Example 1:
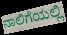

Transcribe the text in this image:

ನಾಲಿಗೆಯಲ್ಲಿ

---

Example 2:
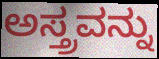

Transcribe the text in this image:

ಅಸ್ತ್ರವನ್ನು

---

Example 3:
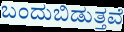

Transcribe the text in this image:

ಬಂದುಬಿಡುತ್ತವೆ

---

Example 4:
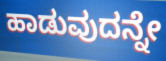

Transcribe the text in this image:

ಹಾಡುವುದನ್ನೇ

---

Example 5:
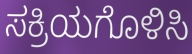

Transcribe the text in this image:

ಸಕ್ರಿಯಗೊಳಿಸಿ